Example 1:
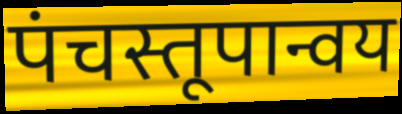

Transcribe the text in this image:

पंचस्तूपान्वय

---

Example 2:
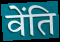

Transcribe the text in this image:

वेंति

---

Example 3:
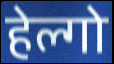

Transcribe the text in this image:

हेल्गो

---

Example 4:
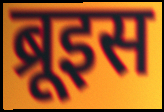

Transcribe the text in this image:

ब्रूइस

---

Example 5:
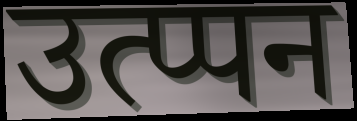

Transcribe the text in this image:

उत्प्पन